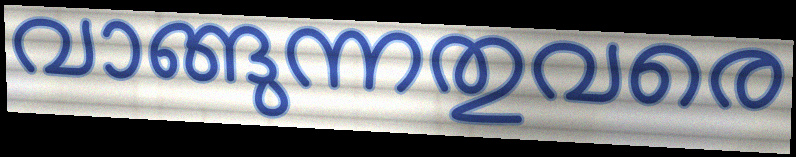
വാങ്ങുന്നതുവരെ